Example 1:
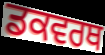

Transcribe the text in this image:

ਡਕਵਰਥ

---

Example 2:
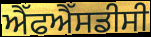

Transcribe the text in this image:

ਐੱਫਐੱਸਡੀਸੀ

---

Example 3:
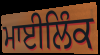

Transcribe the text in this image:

ਮਾਈਲਿੰਕ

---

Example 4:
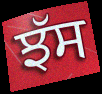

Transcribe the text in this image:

ਝੱਸ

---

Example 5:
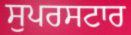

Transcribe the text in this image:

ਸੁਪਰਸਟਾਰ